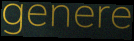
genere